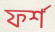
ফর্শ